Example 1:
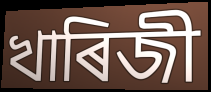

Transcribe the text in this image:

খাৰিজী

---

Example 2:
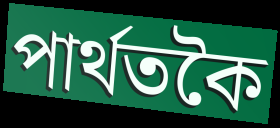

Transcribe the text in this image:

পাৰ্থতকৈ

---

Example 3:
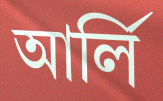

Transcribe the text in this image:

আৰ্লি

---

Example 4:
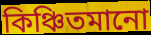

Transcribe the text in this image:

কিঞ্চিতমানো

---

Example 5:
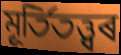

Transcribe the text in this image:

মূৰ্তিতত্ত্বৰ